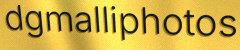
dgmalliphotos